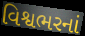
વિશ્વભરનાં